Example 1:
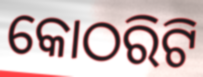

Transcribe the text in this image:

କୋଠରିଟି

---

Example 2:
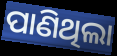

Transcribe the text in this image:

ପାଣିଥିଲା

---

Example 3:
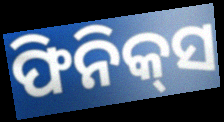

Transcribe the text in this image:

ଫିନିକ୍‍ସ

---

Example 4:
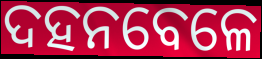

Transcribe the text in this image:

ଦହନବେଳେ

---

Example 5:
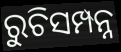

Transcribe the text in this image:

ରୁଚିସମ୍ପନ୍ନ